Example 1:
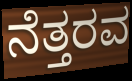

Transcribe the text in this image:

ನೆತ್ತರವ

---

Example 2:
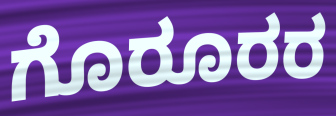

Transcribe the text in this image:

ಗೊರೂರರ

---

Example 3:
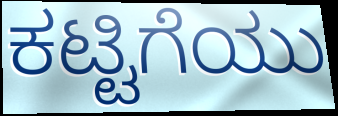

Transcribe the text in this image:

ಕಟ್ಟಿಗೆಯು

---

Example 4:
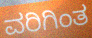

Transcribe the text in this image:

ವರಿಗಿಂತ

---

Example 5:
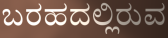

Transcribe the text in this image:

ಬರಹದಲ್ಲಿರುವ